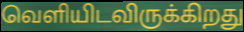
வெளியிடவிருக்கிறது